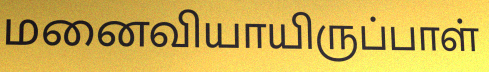
மனைவியாயிருப்பாள்